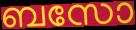
ബസോ